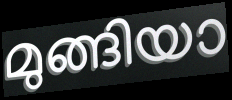
മുങ്ങിയാ